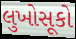
લુખોસૂકો